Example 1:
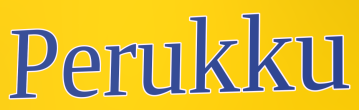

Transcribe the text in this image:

Perukku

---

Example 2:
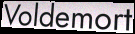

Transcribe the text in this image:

Voldemort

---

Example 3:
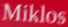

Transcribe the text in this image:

Miklos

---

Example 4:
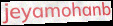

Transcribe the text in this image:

jeyamohanb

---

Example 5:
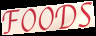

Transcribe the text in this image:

FOODS